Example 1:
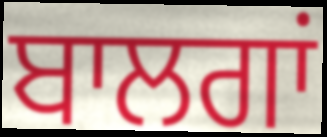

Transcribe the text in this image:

ਬਾਲਗਾਂ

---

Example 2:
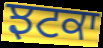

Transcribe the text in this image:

ਝਟਕਾ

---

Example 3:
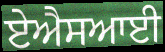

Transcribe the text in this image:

ਏਐਸਆਈ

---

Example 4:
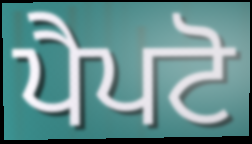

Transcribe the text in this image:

ਪੈਪਟੋ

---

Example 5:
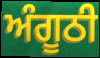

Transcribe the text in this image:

ਅੰਗੂਠੀ